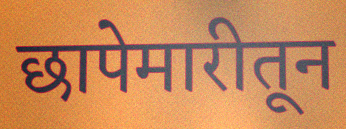
छापेमारीतून